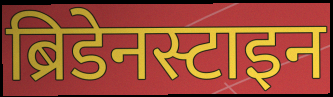
ब्रिडेनस्टाइन